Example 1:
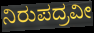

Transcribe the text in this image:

ನಿರುಪದ್ರವೀ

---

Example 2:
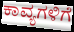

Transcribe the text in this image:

ಕಾವ್ಯಗಳಿಗೆ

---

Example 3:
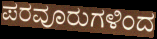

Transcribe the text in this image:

ಪರವೂರುಗಳಿಂದ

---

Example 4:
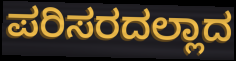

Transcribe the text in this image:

ಪರಿಸರದಲ್ಲಾದ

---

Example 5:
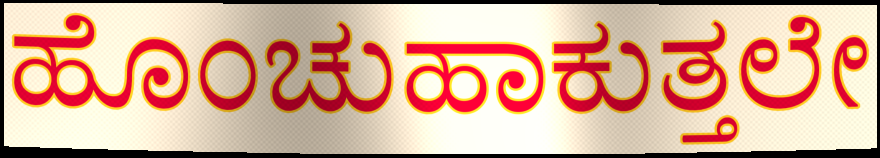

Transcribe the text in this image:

ಹೊಂಚುಹಾಕುತ್ತಲೇ